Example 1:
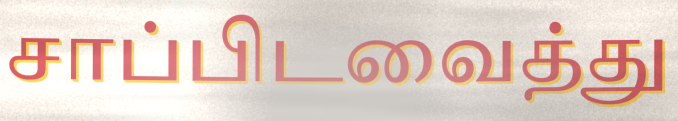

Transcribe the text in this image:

சாப்பிடவைத்து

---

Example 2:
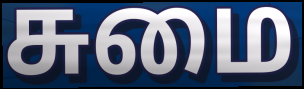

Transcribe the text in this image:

சுமை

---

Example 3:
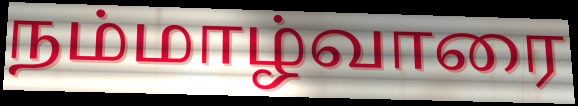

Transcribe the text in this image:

நம்மாழ்வாரை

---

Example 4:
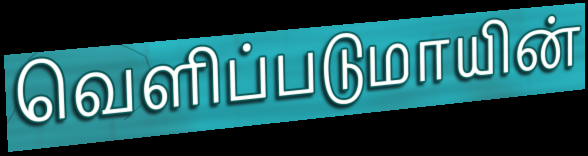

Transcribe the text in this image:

வெளிப்படுமாயின்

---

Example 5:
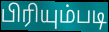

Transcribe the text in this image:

பிரியும்படி